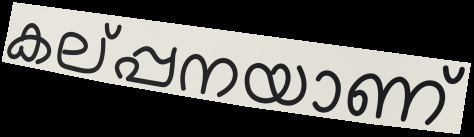
കല്പ്പനയാണ്